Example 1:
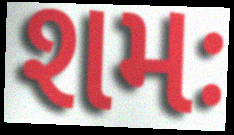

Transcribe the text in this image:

શમઃ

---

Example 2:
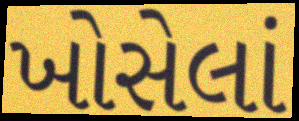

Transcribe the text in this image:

ખોસેલાં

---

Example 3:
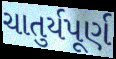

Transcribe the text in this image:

ચાતુર્યપૂર્ણ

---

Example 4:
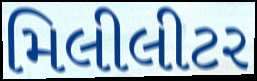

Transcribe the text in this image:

મિલીલીટર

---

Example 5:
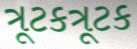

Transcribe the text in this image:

ત્રૂટકત્રૂટક